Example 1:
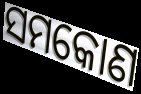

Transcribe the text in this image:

ସମକୋଣ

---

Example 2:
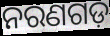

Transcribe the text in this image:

ନରଣଗଡ଼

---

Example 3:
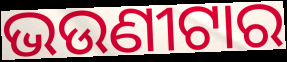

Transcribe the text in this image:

ଭଉଣୀଟାର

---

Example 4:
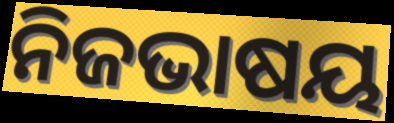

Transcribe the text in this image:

ନିଜଭାଷୟ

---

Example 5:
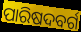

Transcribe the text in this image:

ପାରିଷଦବର୍ଗ